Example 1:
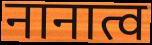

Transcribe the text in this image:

नानात्व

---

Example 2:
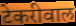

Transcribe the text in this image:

टेकरीवाल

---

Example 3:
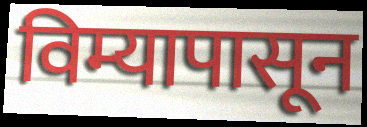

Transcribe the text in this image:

विम्यापासून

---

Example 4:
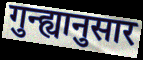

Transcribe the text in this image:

गुन्ह्यानुसार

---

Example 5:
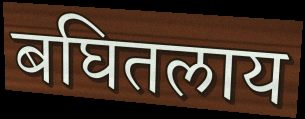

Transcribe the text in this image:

बघितलाय